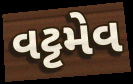
વટ્ટમેવ